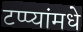
टप्प्यांमधे